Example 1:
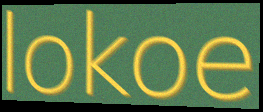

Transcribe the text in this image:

lokoe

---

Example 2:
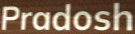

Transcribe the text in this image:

Pradosh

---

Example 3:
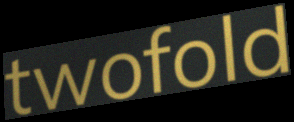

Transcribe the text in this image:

twofold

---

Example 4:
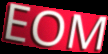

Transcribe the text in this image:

EOM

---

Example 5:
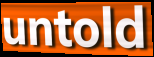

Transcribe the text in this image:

untold